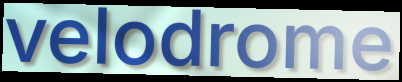
velodrome